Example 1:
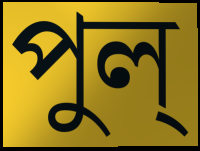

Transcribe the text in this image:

পুল্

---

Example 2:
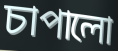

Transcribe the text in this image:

চাপালো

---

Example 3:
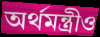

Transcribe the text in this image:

অর্থমন্ত্রীও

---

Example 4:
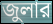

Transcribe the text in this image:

জুলার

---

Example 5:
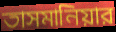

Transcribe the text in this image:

তাসমানিয়ার